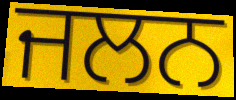
ਜਲਨ